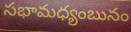
సభామధ్యంబునం